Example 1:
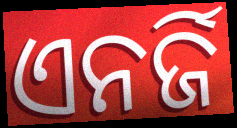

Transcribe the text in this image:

ଏନର୍ଜି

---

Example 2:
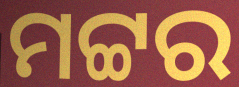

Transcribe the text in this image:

ମଟ୍ଟର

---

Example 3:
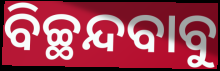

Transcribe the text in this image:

ବିଚ୍ଛନ୍ଦବାବୁ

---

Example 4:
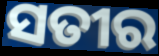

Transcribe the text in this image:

ସତୀର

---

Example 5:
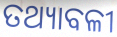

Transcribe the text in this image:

ତଥ୍ୟାବଳୀ